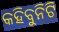
କହିବୁନିଟି